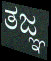
ತಜ್ಞ